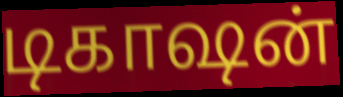
டிகாஷன்